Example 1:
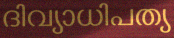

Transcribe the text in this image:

ദിവ്യാധിപത്യ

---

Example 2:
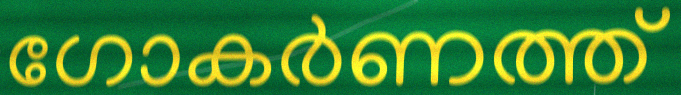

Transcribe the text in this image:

ഗോകർണത്ത്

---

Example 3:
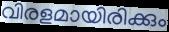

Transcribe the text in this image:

വിരളമായിരിക്കും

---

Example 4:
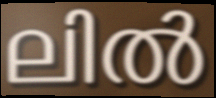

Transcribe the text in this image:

ലിൽ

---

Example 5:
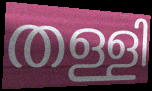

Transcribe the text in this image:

തള്ളി